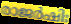
രാജർഷിഃ